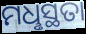
ମଧୢସ୍ଥତା